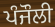
ਪੰਜੌਲੀ